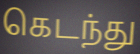
கெடந்து